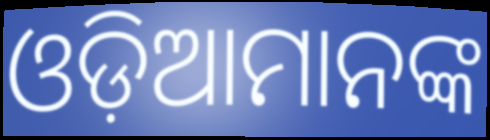
ଓଡ଼ିଆମାନଙ୍କ